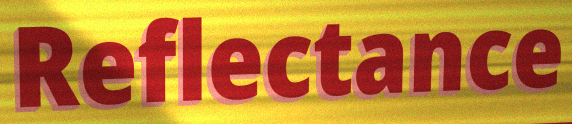
Reflectance